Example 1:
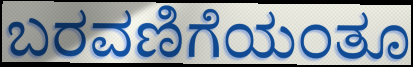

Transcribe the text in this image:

ಬರವಣಿಗೆಯಂತೂ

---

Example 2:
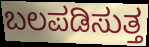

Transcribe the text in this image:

ಬಲಪಡಿಸುತ್ತ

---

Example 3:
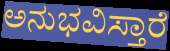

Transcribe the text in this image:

ಅನುಭವಿಸ್ತಾರೆ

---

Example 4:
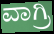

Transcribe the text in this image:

ವಾಗ್ರಿ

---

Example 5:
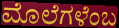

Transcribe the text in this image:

ಮೊಲೆಗಳೆಂಬ